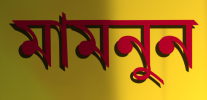
মামনুন